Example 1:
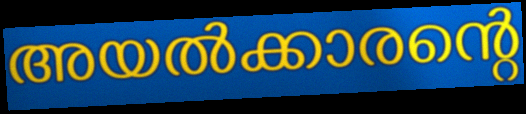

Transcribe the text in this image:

അയൽക്കാരന്റെ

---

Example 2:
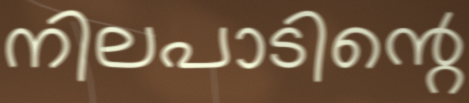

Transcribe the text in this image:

നിലപാടിന്റെ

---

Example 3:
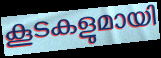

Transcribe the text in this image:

കൂടകളുമായി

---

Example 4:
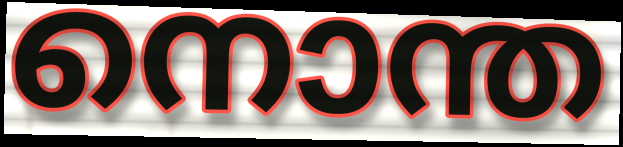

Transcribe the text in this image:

നൊന്ത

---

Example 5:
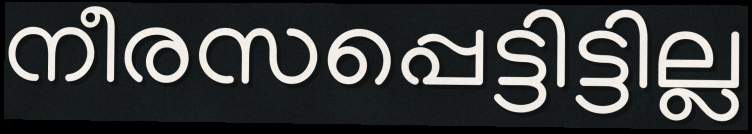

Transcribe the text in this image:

നീരസപ്പെട്ടിട്ടില്ല